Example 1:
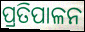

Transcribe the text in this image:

ପ୍ରତିପାଳନ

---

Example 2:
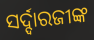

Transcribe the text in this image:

ସର୍ଦ୍ଦାରଜୀଙ୍କ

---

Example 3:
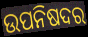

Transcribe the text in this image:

ଉପନିଷଦର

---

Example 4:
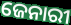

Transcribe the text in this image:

ଜେନାରୀ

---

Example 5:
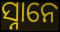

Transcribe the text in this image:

ସ୍ନାନେ